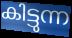
കിട്ടുന്ന